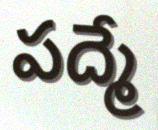
పద్మే